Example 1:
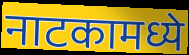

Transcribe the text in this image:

नाटकामध्ये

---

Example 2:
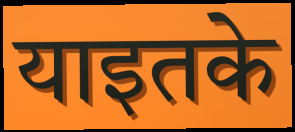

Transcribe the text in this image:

याइतके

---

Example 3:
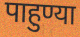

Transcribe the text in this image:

पाहुण्या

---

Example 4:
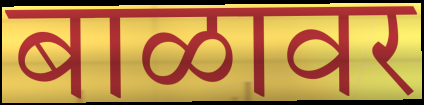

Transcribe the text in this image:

बाळावर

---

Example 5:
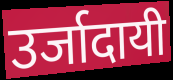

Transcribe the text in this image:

उर्जादायी